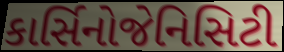
કાર્સિનોજેનિસિટી